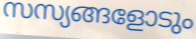
സസ്യങ്ങളോടും